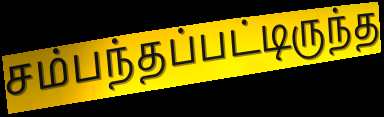
சம்பந்தப்பட்டிருந்த